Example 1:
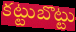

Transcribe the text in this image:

కట్టుబొట్టు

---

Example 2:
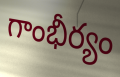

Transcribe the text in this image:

గాంభీర్యం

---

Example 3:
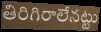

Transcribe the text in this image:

తిరిగిరాలేనట్టు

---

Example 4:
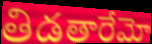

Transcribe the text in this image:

తిడతారేమో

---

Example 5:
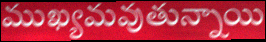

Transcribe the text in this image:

ముఖ్యమవుతున్నాయి